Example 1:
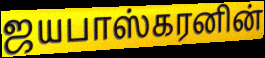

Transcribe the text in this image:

ஜயபாஸ்கரனின்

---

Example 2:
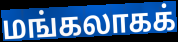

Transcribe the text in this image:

மங்கலாகக்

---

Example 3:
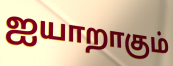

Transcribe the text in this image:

ஐயாறாகும்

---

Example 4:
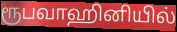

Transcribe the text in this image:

ரூபவாஹினியில்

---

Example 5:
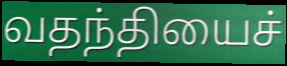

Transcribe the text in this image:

வதந்தியைச்